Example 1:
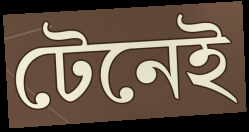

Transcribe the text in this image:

টেনেই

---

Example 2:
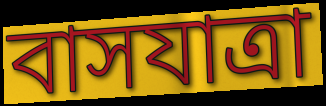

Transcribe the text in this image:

বাসযাত্রা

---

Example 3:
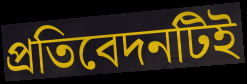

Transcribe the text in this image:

প্রতিবেদনটিই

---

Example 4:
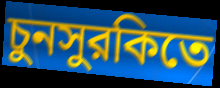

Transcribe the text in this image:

চুনসুরকিতে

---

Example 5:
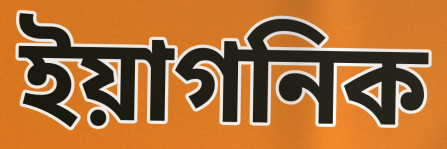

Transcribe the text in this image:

ইয়াগনিক